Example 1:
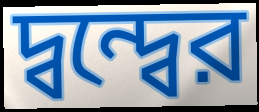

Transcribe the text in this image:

দ্বন্দ্বের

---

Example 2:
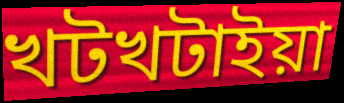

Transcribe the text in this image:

খটখটাইয়া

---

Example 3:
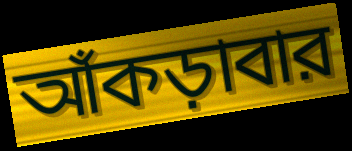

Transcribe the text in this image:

আঁকড়াবার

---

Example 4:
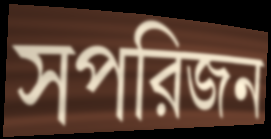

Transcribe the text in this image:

সপরিজন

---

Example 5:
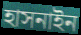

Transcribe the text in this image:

হাসনাইন